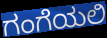
ಗಂಗೆಯಲಿ